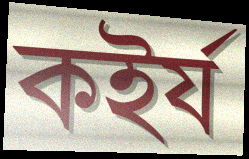
কইর্য